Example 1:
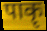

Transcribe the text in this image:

पाकॄ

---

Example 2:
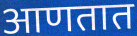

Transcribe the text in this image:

आणतात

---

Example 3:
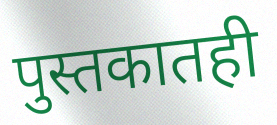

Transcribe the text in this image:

पुस्तकातही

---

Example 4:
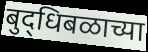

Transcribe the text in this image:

बुद्धिबळाच्या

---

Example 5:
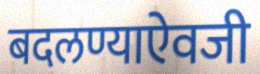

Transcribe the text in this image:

बदलण्याऐवजी